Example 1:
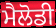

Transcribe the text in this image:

ਮੈਲੋਡੀ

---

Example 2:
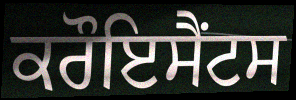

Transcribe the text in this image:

ਕਰੌਇਸੈਂਟਸ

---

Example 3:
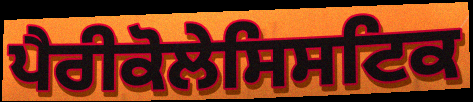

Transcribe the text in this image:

ਪੈਰੀਕੋਲੇਸਿਸਟਿਕ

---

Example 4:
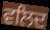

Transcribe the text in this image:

ਵਲਿਦ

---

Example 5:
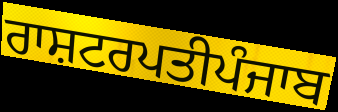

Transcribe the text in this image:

ਰਾਸ਼ਟਰਪਤੀਪੰਜਾਬ